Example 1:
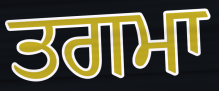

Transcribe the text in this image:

ਤਗਮਾ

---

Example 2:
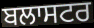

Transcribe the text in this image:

ਬਲਾਸਟਰ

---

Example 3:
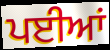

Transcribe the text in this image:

ਪਈਆਂ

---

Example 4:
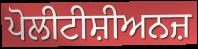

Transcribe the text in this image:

ਪੋਲੀਟੀਸ਼ੀਅਨਜ਼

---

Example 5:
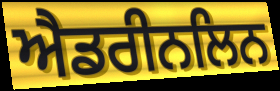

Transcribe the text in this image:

ਐਡਰੀਨਲਿਨ